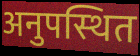
अनुपस्थित